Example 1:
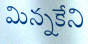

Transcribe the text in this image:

మిన్నకేని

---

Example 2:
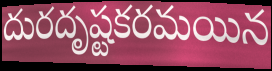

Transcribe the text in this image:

దురదృష్టకరమయిన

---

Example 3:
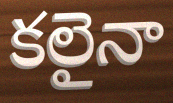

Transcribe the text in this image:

కలైనా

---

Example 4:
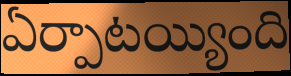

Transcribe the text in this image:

ఏర్పాటయ్యింది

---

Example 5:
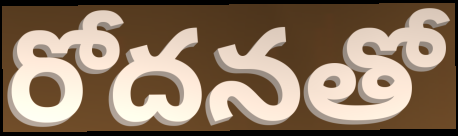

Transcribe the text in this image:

రోదనతో